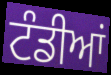
ਟੰਡੀਆਂ